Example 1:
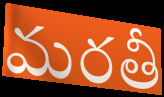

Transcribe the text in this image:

మరతీ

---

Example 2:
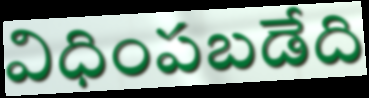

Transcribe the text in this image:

విధింపబడేది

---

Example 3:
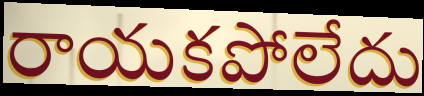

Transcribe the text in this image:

రాయకపోలేదు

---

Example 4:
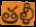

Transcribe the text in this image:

తళీ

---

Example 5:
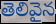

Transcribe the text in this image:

తెలివైన